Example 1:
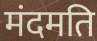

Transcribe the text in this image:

मंदमति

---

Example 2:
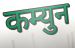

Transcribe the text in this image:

कम्युन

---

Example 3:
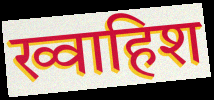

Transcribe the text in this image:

ख्वाहिश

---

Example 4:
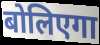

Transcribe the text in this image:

बोलिएगा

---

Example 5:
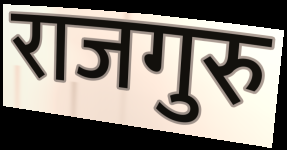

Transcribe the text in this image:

राजगुरु